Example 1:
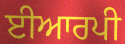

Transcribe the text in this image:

ਈਆਰਪੀ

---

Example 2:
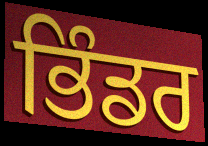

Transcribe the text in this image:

ਭਿੰਡਰ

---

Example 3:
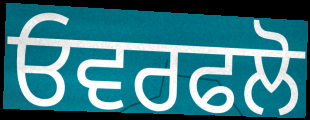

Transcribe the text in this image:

ਓਵਰਫਲੋ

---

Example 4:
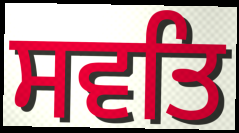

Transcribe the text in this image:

ਸਵਤਿ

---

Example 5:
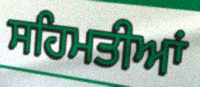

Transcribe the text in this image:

ਸਹਿਮਤੀਆਂ